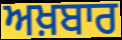
ਅਖ਼ਬਾਰ